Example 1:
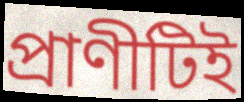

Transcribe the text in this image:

প্রাণীটিই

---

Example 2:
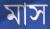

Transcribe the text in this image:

মাস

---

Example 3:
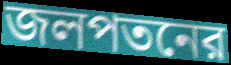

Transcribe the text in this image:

জলপতনের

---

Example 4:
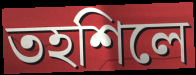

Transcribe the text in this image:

তহশিলে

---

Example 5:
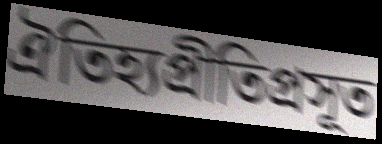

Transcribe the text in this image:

ঐতিহ্যপ্রীতিপ্রসূত